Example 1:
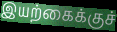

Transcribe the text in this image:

இயற்கைக்குச்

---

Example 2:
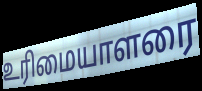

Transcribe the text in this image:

உரிமையாளரை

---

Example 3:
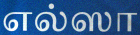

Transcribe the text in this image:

எல்ஸா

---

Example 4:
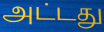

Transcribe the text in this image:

அட்டது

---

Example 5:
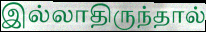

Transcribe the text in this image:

இல்லாதிருந்தால்